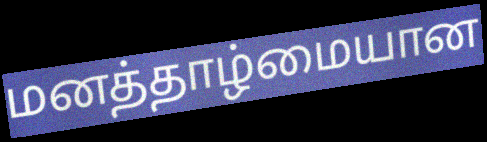
மனத்தாழ்மையான